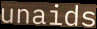
unaids